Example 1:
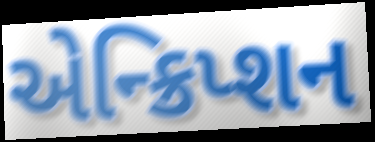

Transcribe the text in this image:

એન્ક્રિપ્શન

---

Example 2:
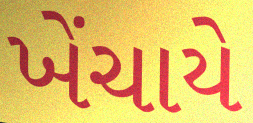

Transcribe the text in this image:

ખેંચાયે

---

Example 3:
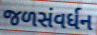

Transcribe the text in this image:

જળસંવર્ધન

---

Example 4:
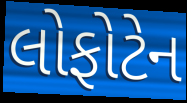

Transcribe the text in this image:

લોફોટેન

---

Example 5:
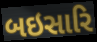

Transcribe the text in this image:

બઇસારિ